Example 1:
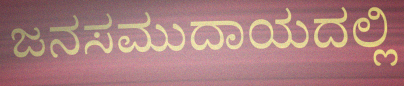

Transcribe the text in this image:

ಜನಸಮುದಾಯದಲ್ಲಿ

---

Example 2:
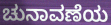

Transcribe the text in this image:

ಚುನಾವಣೆಯ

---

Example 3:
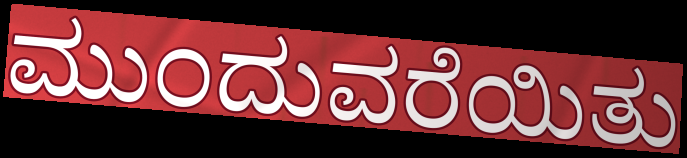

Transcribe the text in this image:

ಮುಂದುವರೆಯಿತು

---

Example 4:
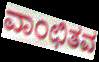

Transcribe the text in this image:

ವಾಂಛಿತವ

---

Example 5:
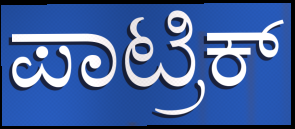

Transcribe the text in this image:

ಪಾಟ್ರಿಕ್